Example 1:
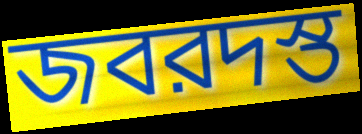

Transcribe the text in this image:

জবরদস্ত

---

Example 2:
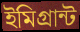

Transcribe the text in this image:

ইমিগ্রান্ট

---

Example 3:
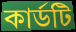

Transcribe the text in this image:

কার্ডটি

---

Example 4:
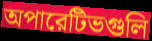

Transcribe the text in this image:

অপারেটিভগুলি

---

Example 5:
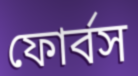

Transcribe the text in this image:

ফোর্বস